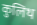
कुलिथ